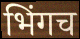
भिंगच